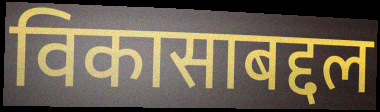
विकासाबद्दल